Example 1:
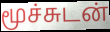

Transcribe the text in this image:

மூச்சுடன்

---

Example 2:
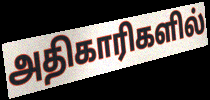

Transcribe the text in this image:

அதிகாரிகளில்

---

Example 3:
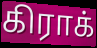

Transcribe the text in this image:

கிராக்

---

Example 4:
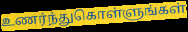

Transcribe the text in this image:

உணர்ந்துகொள்ளுங்கள்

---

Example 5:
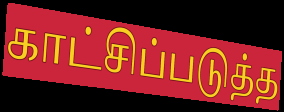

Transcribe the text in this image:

காட்சிப்படுத்த